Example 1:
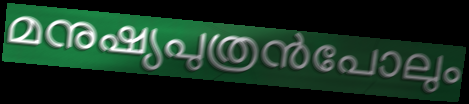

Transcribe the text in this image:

മനുഷ്യപുത്രൻപോലും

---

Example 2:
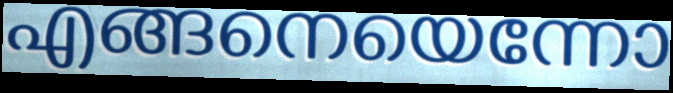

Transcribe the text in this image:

എങ്ങനെയെന്നോ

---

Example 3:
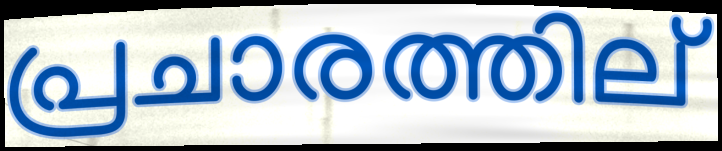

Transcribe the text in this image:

പ്രചാരത്തില്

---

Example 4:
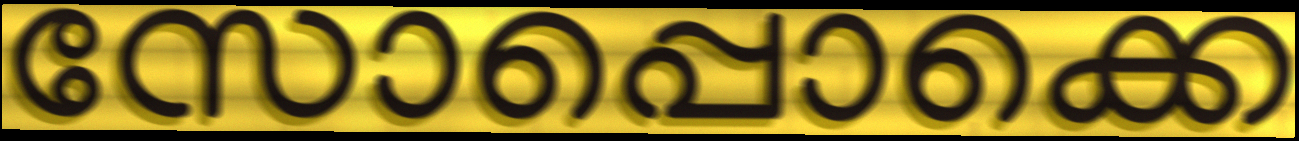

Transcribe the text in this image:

സോപ്പൊക്കെ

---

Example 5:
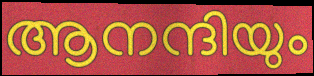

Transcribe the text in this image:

ആനന്ദിയും